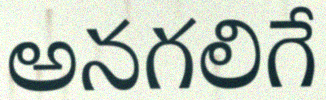
అనగలిగే